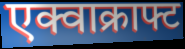
एक्वाक्राफ्ट